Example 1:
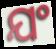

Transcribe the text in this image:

ଯଂ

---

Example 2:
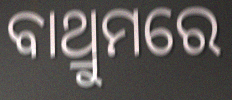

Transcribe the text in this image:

ବାଥ୍ରୁମରେ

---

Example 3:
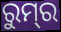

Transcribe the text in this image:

ରୁମ୍‌ର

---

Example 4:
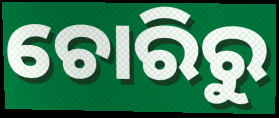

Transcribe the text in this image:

ଚୋରିରୁ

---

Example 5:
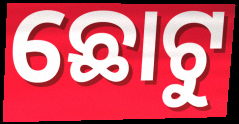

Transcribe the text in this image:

ଛୋଟୁ